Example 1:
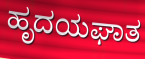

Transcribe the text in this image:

ಹೃದಯಘಾತ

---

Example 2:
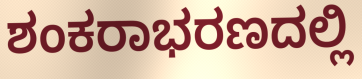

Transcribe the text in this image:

ಶಂಕರಾಭರಣದಲ್ಲಿ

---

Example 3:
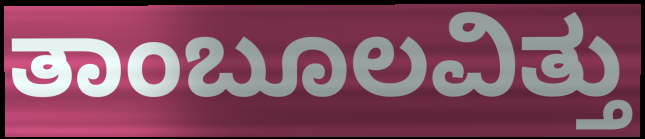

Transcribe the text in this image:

ತಾಂಬೂಲವಿತ್ತು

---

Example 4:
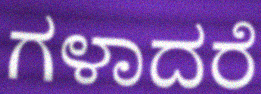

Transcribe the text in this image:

ಗಳಾದರೆ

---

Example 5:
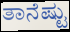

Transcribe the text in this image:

ತಾನೆಷ್ಟು